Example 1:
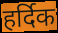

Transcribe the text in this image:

हर्दिक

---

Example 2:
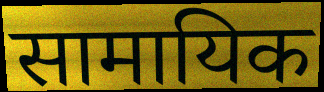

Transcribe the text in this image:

सामायिक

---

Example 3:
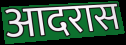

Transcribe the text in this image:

आदरास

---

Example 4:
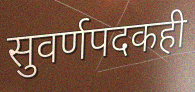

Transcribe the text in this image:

सुवर्णपदकही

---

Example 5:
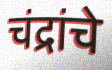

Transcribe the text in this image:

चंद्रांचे